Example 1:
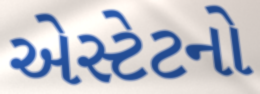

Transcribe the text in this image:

એસ્ટેટનો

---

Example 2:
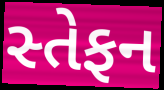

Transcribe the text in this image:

સ્તેફન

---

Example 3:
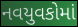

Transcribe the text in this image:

નવયુવકોમાં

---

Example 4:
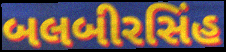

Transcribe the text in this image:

બલબીરસિંહ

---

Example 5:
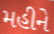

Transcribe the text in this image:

મહીને